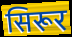
सिरूर